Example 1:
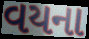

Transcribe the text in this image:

વયના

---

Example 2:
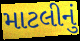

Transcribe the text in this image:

માટલીનું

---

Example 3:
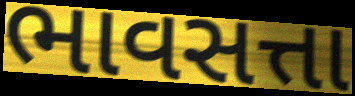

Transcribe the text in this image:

ભાવસત્તા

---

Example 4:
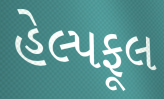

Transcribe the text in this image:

હેલ્પફૂલ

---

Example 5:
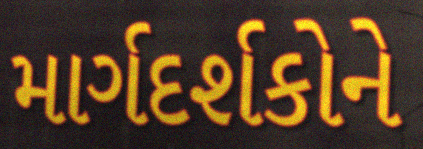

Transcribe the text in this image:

માર્ગદર્શકોને